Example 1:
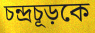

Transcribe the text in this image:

চন্দ্রচূড়কে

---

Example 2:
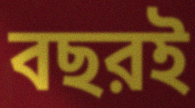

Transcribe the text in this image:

বছরই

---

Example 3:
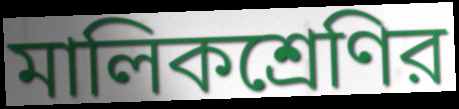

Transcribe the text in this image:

মালিকশ্রেণির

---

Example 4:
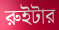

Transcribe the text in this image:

রুইটার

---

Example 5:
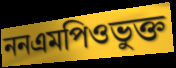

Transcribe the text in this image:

ননএমপিওভুক্ত